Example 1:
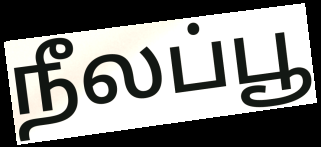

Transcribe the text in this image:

நீலப்பூ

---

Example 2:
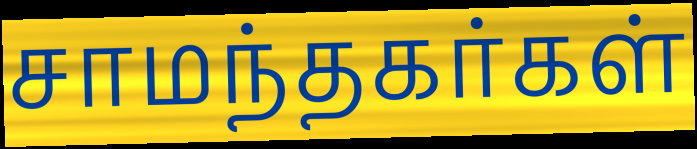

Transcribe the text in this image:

சாமந்தகர்கள்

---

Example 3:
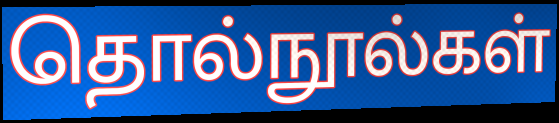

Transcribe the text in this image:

தொல்நூல்கள்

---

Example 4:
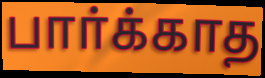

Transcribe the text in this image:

பார்க்காத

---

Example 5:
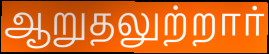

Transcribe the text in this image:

ஆறுதலுற்றார்